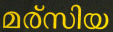
മര്സിയ